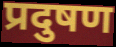
प्रदुषण